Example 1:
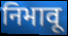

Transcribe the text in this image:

निभावू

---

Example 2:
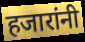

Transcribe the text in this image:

हजारांनी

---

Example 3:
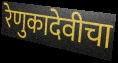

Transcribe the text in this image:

रेणुकादेवीचा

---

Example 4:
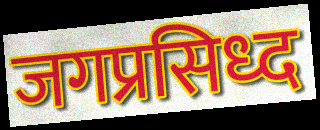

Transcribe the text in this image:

जगप्रसिध्द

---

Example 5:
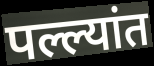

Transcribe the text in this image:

पल्ल्यांत